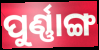
ପୁର୍ଣ୍ଣାଙ୍ଗ